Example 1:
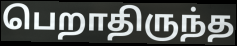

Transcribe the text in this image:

பெறாதிருந்த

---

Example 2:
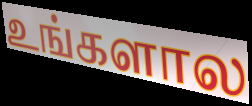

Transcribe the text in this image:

உங்களால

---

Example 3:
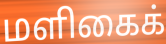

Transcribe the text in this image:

மளிகைக்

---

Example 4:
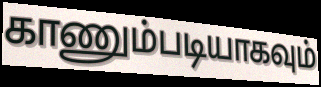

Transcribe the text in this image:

காணும்படியாகவும்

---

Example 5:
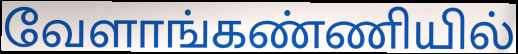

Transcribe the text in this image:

வேளாங்கண்ணியில்